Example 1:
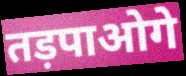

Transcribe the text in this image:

तड़पाओगे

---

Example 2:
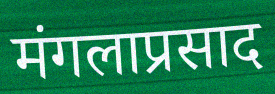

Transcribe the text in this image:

मंगलाप्रसाद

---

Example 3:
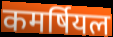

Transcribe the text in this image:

कमर्षियल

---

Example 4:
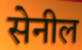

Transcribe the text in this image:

सेनील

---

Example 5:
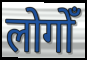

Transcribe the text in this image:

लोगोँ